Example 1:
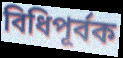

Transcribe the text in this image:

বিধিপূর্বক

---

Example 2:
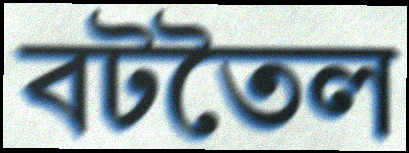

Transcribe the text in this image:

বটতৈল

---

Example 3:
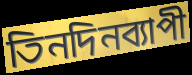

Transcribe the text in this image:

তিনদিনব্যাপী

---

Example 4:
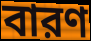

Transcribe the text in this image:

বারণ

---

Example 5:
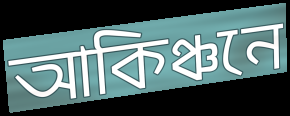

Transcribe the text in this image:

আকিঞ্চনে